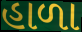
હાળા